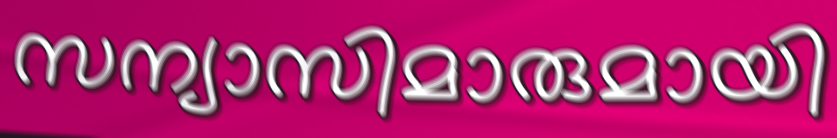
സന്യാസിമാരുമായി